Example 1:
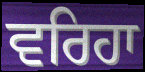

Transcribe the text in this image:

ਵਰਿਹਾ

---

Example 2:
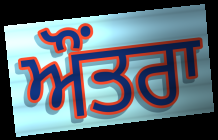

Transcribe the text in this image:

ਔਂਤਰਾ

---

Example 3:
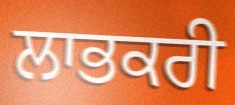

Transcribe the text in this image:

ਲਾਭਕਰੀ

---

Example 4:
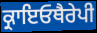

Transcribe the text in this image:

ਕ੍ਰਾਇਓਥੈਰੇਪੀ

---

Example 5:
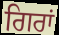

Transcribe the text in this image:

ਗਿਰਾਂ